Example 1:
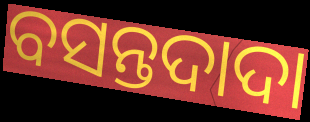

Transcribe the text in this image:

ବସନ୍ତଦାଦା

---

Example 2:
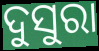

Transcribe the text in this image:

ଦୁସୁରା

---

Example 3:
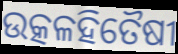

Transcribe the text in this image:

ଉତ୍କଳହିତୈଷୀ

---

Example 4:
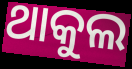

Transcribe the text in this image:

ଥାକୁଲ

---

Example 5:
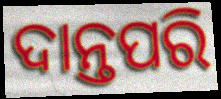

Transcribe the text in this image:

ଦାନ୍ତପରି